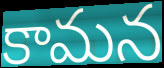
కామన